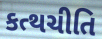
કત્થચીતિ